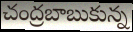
చంద్రబాబుకున్న